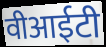
वीआईटी